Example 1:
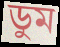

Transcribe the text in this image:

ডুম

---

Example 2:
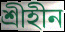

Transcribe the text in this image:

শ্রীহীন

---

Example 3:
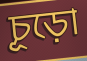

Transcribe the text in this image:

চূড়ো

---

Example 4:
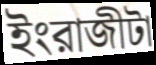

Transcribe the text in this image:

ইংরাজীটা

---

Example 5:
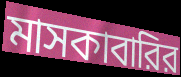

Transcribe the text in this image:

মাসকাবারির